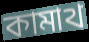
কামাথ